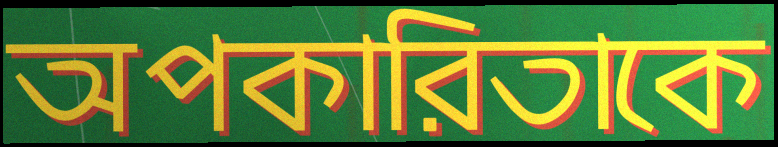
অপকারিতাকে